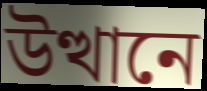
উত্থানে